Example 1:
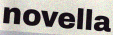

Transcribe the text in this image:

novella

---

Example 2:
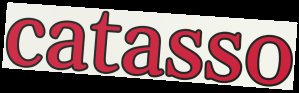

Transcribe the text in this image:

catasso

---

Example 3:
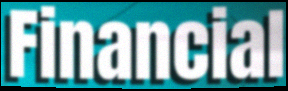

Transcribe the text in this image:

Financial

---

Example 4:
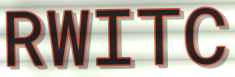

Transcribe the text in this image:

RWITC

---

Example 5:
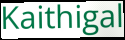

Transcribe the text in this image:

Kaithigal